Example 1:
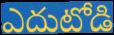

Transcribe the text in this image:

ఎదుటోడి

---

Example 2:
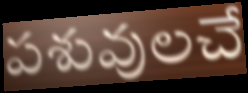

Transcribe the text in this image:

పశువులచే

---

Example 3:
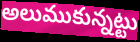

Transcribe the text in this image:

అలుముకున్నట్టు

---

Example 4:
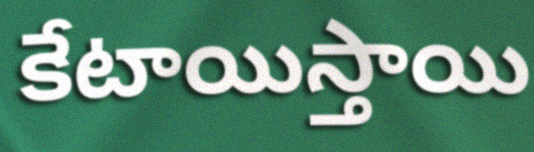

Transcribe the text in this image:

కేటాయిస్తాయి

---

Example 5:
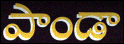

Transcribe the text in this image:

పాండా